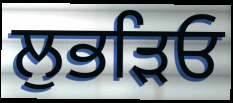
ਲੁਭੜਿਓ